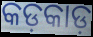
କଡ଼କାଡ଼